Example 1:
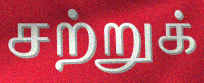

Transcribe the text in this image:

சற்றுக்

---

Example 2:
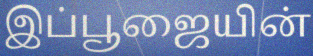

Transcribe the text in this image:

இப்பூஜையின்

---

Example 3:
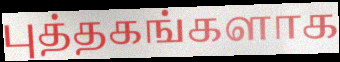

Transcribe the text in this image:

புத்தகங்களாக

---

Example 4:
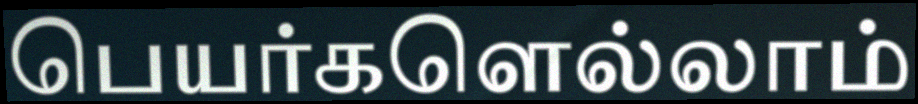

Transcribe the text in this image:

பெயர்களெல்லாம்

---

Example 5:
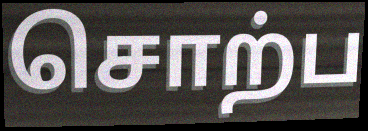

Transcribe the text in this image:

சொற்ப